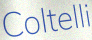
Coltelli